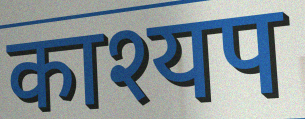
काश्यप